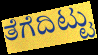
ತೆಗೆದಿಟ್ಟು